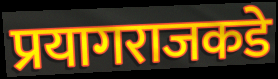
प्रयागराजकडे